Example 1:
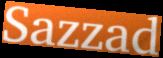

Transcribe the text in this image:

Sazzad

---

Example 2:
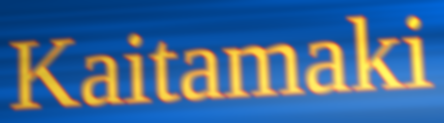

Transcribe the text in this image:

Kaitamaki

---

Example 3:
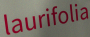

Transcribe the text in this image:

laurifolia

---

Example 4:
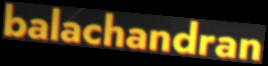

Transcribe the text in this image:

balachandran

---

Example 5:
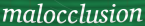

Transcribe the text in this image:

malocclusion